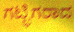
ಗಟ್ಟಿಗರಾದ